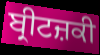
ਬ੍ਰੀਟਜ਼ਕੀ